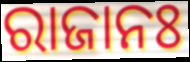
ରାଜାନଃ